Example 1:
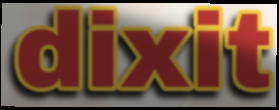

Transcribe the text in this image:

dixit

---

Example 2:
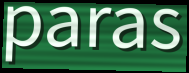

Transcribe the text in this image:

paras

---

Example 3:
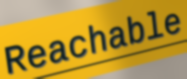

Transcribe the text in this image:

Reachable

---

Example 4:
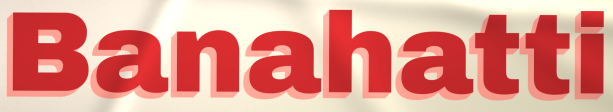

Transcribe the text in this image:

Banahatti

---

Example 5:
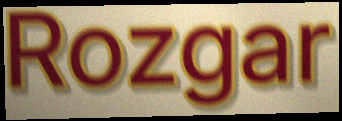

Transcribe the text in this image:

Rozgar